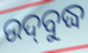
ଉଦ୍‌ବୁଦ୍ଧ